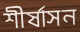
শীর্ষাসন